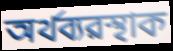
অৰ্থব্যৱস্থাক